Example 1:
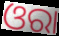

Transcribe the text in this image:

ଓରା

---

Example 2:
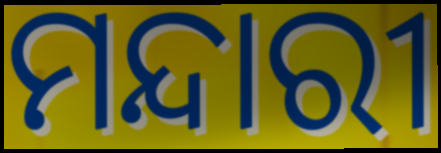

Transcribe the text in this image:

ମନ୍ଦାରୀ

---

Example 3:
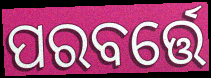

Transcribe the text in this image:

ପରବର୍ତ୍ତେ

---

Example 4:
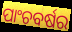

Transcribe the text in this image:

ପାଂଚବର୍ଷର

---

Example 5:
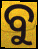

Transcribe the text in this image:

ବୁ